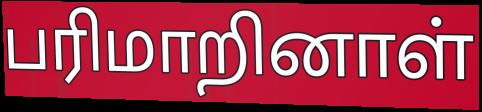
பரிமாறினாள்